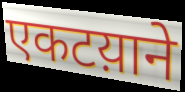
एकटय़ाने